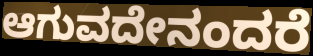
ಆಗುವದೇನಂದರೆ